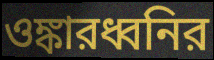
ওঙ্কারধ্বনির